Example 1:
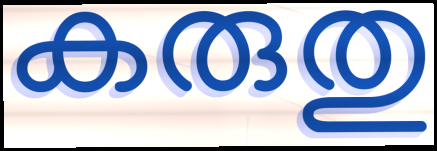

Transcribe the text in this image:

കരുതു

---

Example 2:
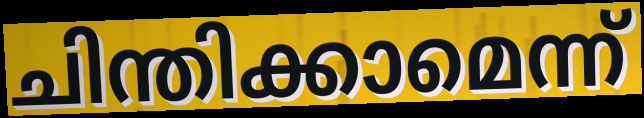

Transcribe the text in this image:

ചിന്തിക്കാമെന്ന്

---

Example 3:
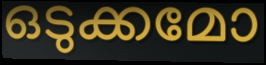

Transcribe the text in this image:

ഒടുക്കമോ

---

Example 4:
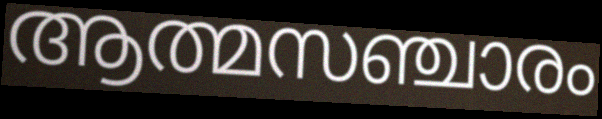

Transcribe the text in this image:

ആത്മസഞ്ചാരം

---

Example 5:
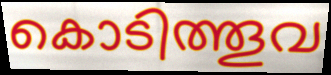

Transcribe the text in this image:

കൊടിത്തൂവ